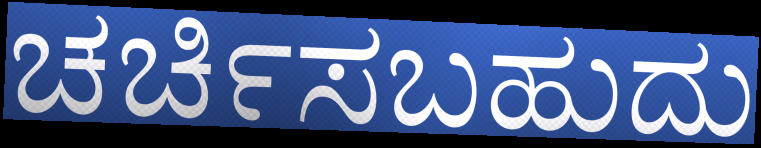
ಚರ್ಚಿಸಬಹುದು